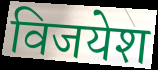
विजयेश